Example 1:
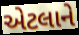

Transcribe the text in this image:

એટલાને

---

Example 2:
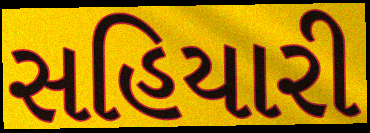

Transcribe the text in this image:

સહિયારી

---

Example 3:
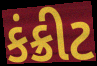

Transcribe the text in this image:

કંક્રીટ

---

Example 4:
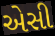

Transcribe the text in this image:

એસી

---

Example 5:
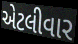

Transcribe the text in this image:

એટલીવાર